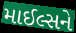
માઈલ્સને